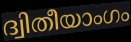
ദ്വിതീയാംഗം